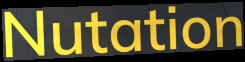
Nutation